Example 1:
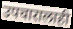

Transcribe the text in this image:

उपचारालाही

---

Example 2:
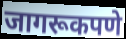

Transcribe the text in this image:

जागरूकपणे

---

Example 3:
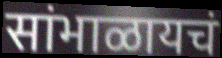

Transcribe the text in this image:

सांभाळायचं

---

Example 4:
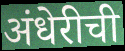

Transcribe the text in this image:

अंधेरीची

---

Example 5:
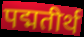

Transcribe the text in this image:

पद्मतीर्थ